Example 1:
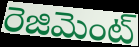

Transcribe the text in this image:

రెజిమెంట్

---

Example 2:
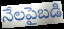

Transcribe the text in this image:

నేలపైబడి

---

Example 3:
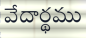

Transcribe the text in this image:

వేదార్థము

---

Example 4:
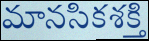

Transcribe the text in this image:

మానసికశక్తి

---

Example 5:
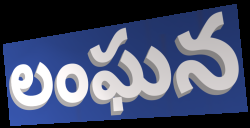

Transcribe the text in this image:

లంఘన